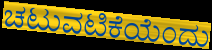
ಚಟುವಟಿಕೆಯೆಂದು